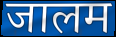
जालम